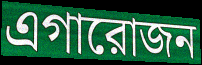
এগারোজন